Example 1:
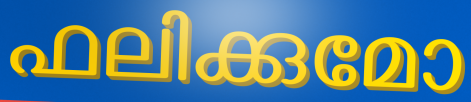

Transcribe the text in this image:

ഫലിക്കുമോ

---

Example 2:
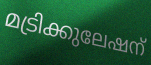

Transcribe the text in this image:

മട്രിക്കുലേഷന്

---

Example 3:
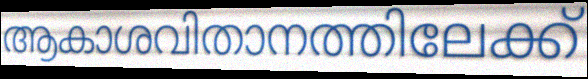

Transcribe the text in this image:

ആകാശവിതാനത്തിലേക്ക്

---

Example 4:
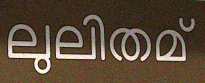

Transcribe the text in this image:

ലുലിതമ്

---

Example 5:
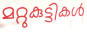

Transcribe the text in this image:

മറ്റുകുട്ടികൾ